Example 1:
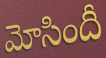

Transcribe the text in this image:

మోసిందీ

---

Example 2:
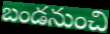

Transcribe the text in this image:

బండనుంచి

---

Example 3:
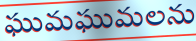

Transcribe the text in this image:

ఘుమఘుమలను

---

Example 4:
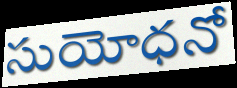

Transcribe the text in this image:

సుయోధనో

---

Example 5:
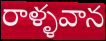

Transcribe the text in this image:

రాళ్ళవాన